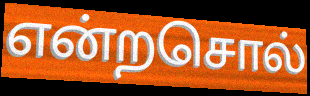
என்றசொல்